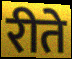
रीते